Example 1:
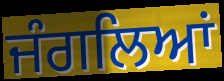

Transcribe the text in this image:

ਜੰਗਲਿਆਂ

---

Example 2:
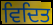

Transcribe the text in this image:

ਵਿਦਿਤ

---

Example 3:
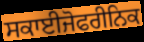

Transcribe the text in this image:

ਸਕਾਈਜੋਫਰੀਨਿਕ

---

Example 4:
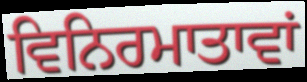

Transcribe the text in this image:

ਵਿਨਿਰਮਾਤਾਵਾਂ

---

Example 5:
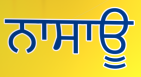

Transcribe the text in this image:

ਨਾਸਾਊ